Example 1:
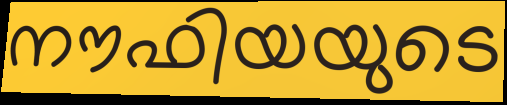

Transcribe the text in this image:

നൗഫിയയുടെ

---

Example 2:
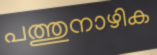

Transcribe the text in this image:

പത്തുനാഴിക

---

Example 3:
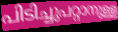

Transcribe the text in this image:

പിടിച്ചുപറ്റാനുള്ള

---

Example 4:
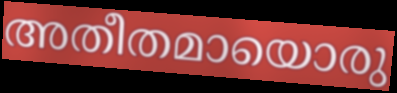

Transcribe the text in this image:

അതീതമായൊരു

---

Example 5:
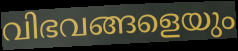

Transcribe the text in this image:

വിഭവങ്ങളെയും